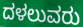
ದಳಲುವರು